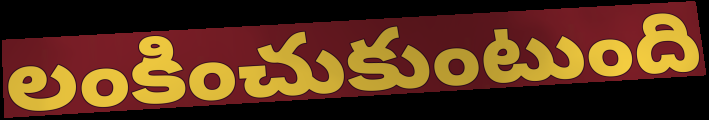
లంకించుకుంటుంది